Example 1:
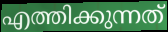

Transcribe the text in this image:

എത്തിക്കുന്നത്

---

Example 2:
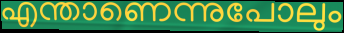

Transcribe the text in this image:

എന്താണെന്നുപോലും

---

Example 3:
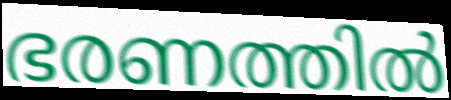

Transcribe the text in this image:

ഭരണത്തിൽ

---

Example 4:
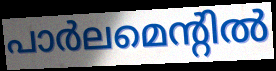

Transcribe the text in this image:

പാർലമെന്റിൽ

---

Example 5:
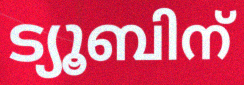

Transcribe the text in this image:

ട്യൂബിന്